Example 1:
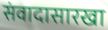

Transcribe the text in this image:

संवादासारखा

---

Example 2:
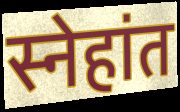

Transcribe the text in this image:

स्नेहांत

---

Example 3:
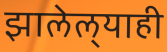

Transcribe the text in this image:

झालेल्याही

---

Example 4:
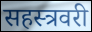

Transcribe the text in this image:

सहस्त्रवरी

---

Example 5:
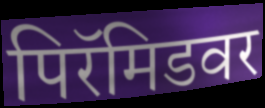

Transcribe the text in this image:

पिरॅमिडवर